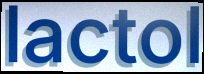
lactol